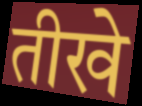
तीखे